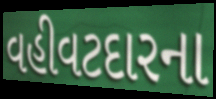
વહીવટદારના